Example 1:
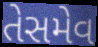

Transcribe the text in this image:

તેસમેવ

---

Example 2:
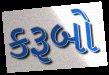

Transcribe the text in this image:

કરૂબો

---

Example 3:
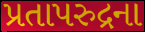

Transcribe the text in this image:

પ્રતાપરુદ્રના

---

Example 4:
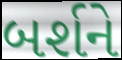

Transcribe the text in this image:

બર્શને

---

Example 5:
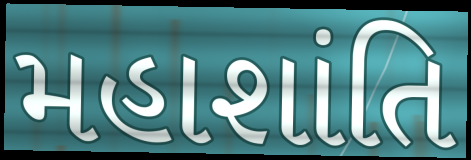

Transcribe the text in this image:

મહાશાંતિ